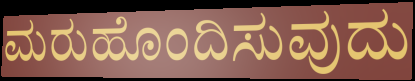
ಮರುಹೊಂದಿಸುವುದು